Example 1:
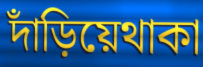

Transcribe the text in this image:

দাঁড়িয়েথাকা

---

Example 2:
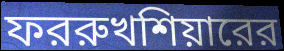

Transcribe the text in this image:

ফররুখশিয়ারের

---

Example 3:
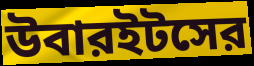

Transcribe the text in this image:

উবারইটসের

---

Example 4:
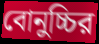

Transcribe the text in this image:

বোনুচ্চির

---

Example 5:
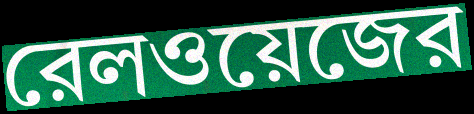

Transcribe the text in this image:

রেলওয়েজের